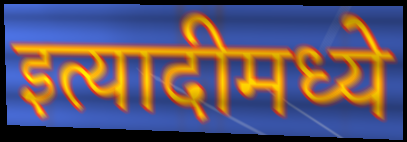
इत्यादीमध्ये